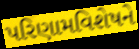
પરિણામવિશેષને